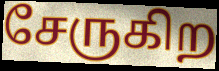
சேருகிற